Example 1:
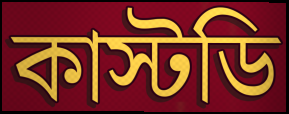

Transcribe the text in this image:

কাস্টডি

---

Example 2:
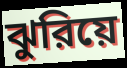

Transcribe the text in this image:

ঝুরিয়ে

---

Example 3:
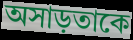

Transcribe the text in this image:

অসাড়তাকে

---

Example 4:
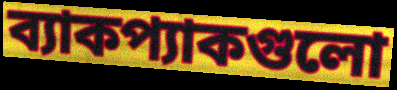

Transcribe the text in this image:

ব্যাকপ্যাকগুলো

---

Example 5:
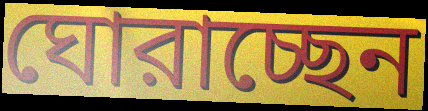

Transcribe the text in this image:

ঘোরাচ্ছেন